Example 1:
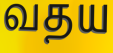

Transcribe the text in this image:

வதய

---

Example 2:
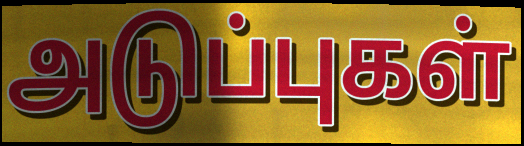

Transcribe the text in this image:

அடுப்புகள்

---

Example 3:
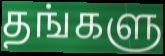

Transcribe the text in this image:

தங்களு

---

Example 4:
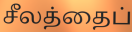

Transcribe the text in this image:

சீலத்தைப்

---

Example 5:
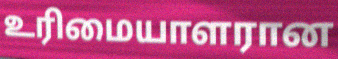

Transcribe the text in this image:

உரிமையாளரான